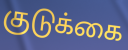
குடுக்கை